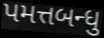
પમત્તબન્ધુ